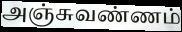
அஞ்சுவண்ணம்